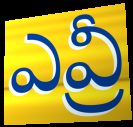
ఎవ్రీ